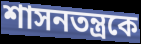
শাসনতন্ত্রকে